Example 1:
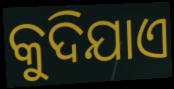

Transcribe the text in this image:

କୁଦିଯାଏ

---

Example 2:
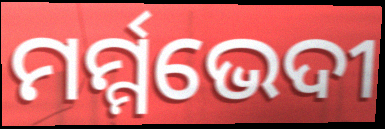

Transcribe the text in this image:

ମର୍ମ୍ମଭେଦୀ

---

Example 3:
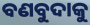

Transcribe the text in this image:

ବଣବୁଦାକୁ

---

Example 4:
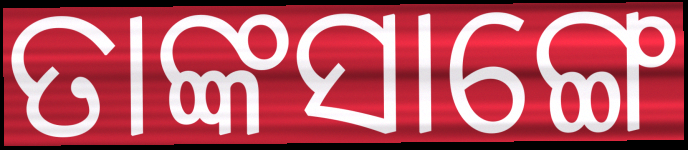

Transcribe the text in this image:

ତାଙ୍କସାଙ୍ଗେ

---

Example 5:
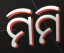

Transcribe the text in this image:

ମିମି